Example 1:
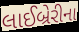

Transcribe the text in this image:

લાઈબ્રેરીના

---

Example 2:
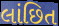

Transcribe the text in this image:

લાંછિત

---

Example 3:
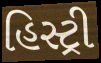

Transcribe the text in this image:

હિસ્ટ્રી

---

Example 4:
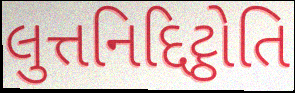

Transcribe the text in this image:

લુત્તનિદ્દિટ્ઠોતિ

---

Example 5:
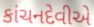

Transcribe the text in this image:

કાંચનદેવીએ